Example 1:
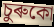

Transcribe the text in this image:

চুৰুকো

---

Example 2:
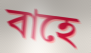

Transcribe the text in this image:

বাহে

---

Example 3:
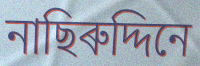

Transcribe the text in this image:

নাছিৰুদ্দিনে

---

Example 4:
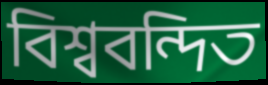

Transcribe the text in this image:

বিশ্ববন্দিত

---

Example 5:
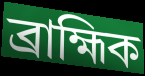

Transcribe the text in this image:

ব্ৰাহ্মিক